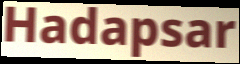
Hadapsar